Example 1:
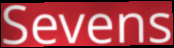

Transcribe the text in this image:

Sevens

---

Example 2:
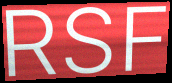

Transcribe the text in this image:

RSF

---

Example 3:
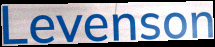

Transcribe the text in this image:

Levenson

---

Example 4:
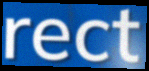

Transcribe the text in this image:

rect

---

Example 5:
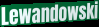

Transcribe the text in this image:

Lewandowski